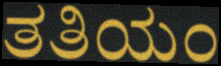
ತತಿಯಂ